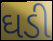
ઘડી